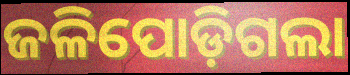
ଜଳିପୋଡ଼ିଗଲା